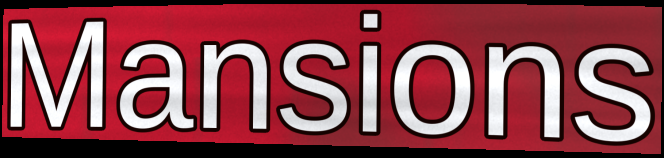
Mansions